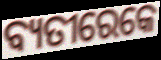
ବ୍ୟତୀରେକେ